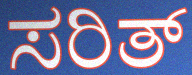
ಸರಿತ್